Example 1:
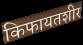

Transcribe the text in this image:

किफायतशीर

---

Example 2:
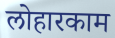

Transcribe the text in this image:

लोहारकाम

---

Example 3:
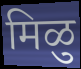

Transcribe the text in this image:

मिळु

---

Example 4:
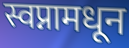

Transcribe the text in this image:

स्वप्नामधून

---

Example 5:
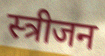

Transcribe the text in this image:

स्त्रीजन